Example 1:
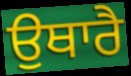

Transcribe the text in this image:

ਉਥਾਰੈ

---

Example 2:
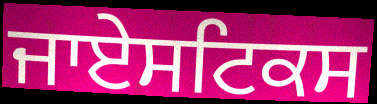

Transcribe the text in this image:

ਜਾਏਸਟਿਕਸ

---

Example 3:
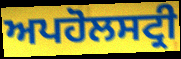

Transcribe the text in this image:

ਅਪਹੋਲਸਟ੍ਰੀ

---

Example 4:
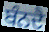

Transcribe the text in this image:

ਬੰਨਦੈ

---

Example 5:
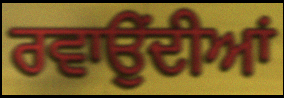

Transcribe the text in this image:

ਰਵਾਉਂਦੀਆਂ